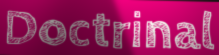
Doctrinal